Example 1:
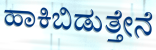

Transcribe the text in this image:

ಹಾಕಿಬಿಡುತ್ತೇನೆ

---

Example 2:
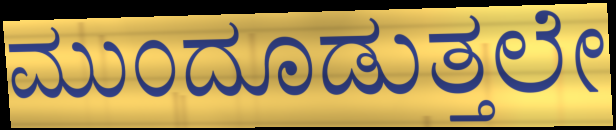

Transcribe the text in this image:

ಮುಂದೂಡುತ್ತಲೇ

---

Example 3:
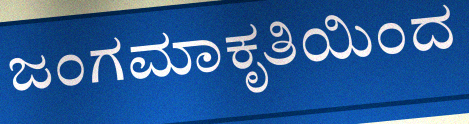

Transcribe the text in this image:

ಜಂಗಮಾಕೃತಿಯಿಂದ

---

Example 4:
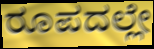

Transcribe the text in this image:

ರೂಪದಲ್ಲೇ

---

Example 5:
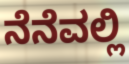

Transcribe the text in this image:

ನೆನೆವಲ್ಲಿ